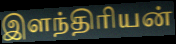
இளந்திரியன்